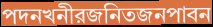
পদনখনীরজনিতজনপাবন